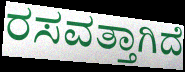
ರಸವತ್ತಾಗಿದೆ